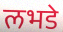
लभडे